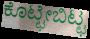
ಕೊಟ್ಟೇಬಿಟ್ಟ